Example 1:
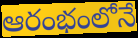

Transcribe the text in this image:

ఆరంభంలోనే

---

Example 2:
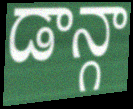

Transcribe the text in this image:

డాన్గా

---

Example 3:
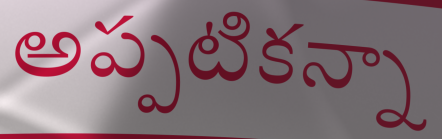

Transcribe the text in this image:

అప్పటికన్నా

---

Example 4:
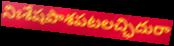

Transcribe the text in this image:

నిఃశేషపాశపటలచ్ఛిదురా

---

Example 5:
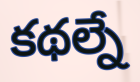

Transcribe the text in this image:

కథల్నే